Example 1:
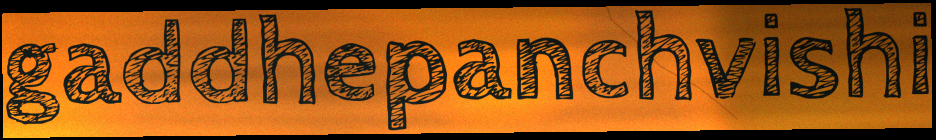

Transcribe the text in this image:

gaddhepanchvishi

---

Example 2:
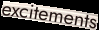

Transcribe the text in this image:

excitements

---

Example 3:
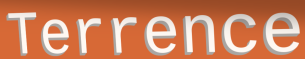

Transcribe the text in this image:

Terrence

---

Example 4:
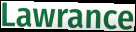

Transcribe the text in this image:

Lawrance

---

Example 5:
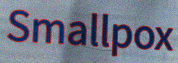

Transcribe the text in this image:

Smallpox